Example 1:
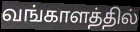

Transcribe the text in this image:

வங்காளத்தில்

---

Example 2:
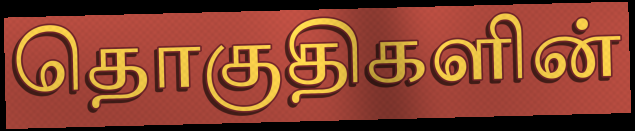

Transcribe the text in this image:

தொகுதிகளின்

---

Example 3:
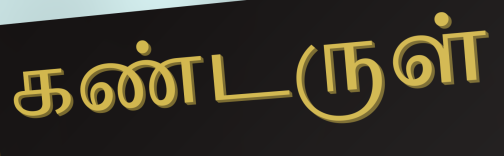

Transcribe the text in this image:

கண்டருள்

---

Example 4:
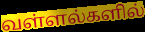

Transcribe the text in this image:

வள்ளல்களில்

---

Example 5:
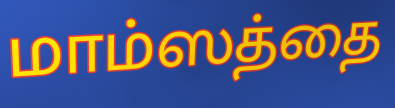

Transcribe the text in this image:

மாம்ஸத்தை